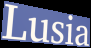
Lusia